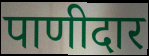
पाणीदार